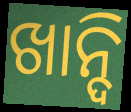
ଖାନ୍ଦି